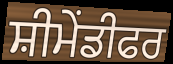
ਸ਼ੀਮੇਂਡੀਫਰ